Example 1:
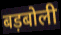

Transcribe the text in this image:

बड़बोली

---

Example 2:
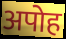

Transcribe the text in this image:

अपोह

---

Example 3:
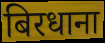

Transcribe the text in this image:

बिरधाना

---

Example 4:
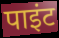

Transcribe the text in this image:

पाइंट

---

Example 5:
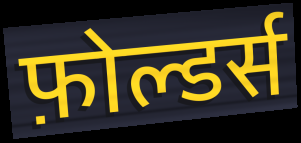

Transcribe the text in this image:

फ़ोल्डर्स